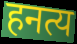
हनत्य